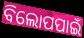
ବିଲୋପପାଇଁ